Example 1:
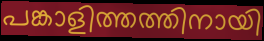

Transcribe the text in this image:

പങ്കാളിത്തത്തിനായി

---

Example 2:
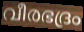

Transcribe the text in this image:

വീരഭദ്രം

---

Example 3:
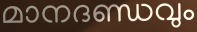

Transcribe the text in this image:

മാനദണ്ഡവും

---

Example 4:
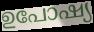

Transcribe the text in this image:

ഉപോഷ്യ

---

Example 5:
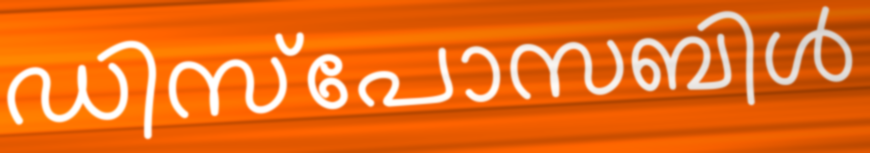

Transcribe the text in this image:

ഡിസ്പോസബിൾ